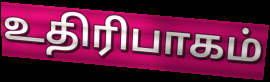
உதிரிபாகம்